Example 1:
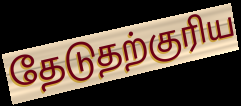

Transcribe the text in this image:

தேடுதற்குரிய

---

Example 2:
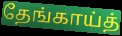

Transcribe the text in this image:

தேங்காய்த்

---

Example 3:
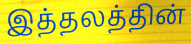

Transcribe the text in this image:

இத்தலத்தின்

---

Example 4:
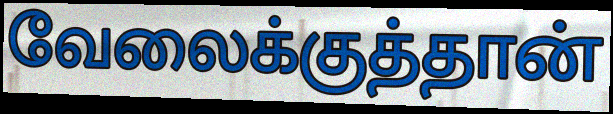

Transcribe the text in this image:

வேலைக்குத்தான்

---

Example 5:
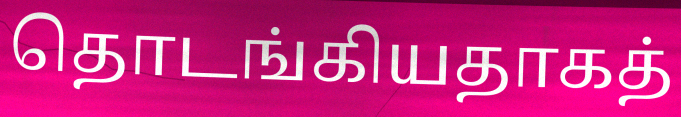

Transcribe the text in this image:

தொடங்கியதாகத்